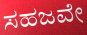
ಸಹಜವೇ